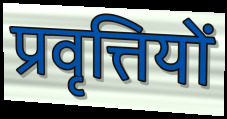
प्रवृत्तियों